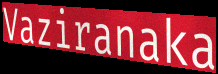
Vaziranaka